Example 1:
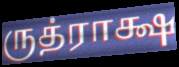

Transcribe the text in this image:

ருத்ராக்ஷ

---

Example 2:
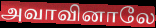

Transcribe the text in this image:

அவாவினாலே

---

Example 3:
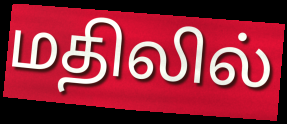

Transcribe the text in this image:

மதிலில்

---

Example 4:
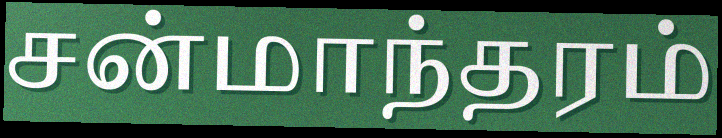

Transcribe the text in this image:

சன்மாந்தரம்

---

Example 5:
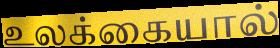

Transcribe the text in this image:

உலக்கையால்